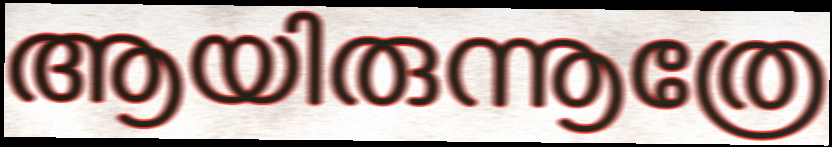
ആയിരുന്നൂത്രേ